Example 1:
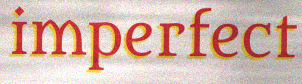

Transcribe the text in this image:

imperfect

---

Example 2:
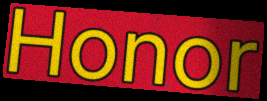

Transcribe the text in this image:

Honor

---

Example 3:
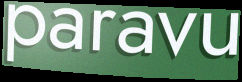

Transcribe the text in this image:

paravu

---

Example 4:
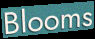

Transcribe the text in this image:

Blooms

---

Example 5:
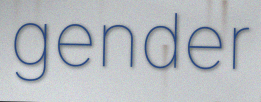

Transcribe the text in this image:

gender